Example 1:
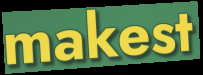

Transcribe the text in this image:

makest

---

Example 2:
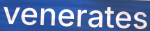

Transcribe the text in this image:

venerates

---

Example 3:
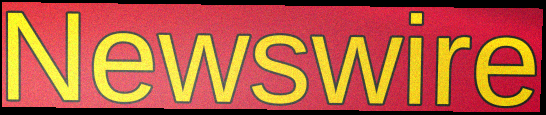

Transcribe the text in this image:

Newswire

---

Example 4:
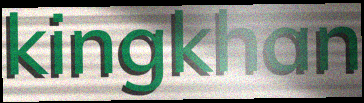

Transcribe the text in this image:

kingkhan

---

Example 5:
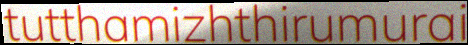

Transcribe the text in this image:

tutthamizhthirumurai